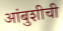
आंबुशीची